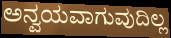
ಅನ್ವಯವಾಗುವುದಿಲ್ಲ